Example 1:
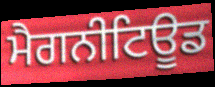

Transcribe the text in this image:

ਮੈਗਨੀਟਿਊਡ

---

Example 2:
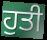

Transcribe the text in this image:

ਹੁਤੀ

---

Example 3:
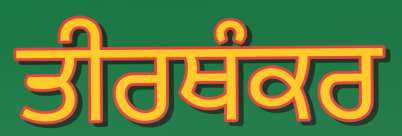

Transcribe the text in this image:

ਤੀਰਥੰਕਰ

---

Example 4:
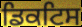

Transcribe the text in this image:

ਡਿਕਟਿਸ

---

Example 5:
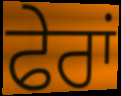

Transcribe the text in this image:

ਫੇਰਾਂ